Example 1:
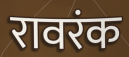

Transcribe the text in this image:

रावरंक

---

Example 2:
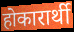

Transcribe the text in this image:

होकारार्थी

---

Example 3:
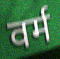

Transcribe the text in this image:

वर्म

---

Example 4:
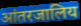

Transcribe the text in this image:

आंतरजालिय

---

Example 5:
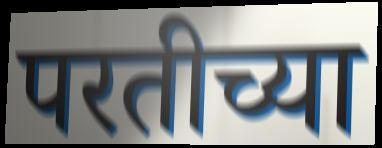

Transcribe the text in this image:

परतीच्या